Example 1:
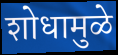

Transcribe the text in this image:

शोधामुळे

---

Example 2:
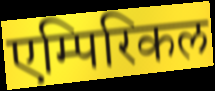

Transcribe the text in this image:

एम्पिरिकल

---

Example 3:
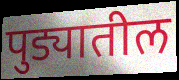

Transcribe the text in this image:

पुड्यातील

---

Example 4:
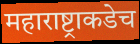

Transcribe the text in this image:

महाराष्ट्राकडेच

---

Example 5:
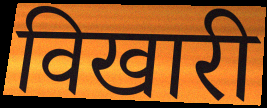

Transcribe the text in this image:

विखारी